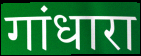
गांधारा